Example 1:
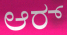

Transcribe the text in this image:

ಆರ್‍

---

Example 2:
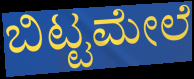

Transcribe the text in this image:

ಬಿಟ್ಟಮೇಲೆ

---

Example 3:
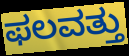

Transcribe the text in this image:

ಫಲವತ್ತು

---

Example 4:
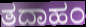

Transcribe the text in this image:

ತದಾಹಂ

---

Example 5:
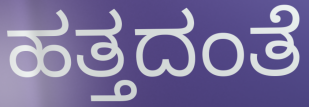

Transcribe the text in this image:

ಹತ್ತದಂತೆ